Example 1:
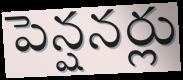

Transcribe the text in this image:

పెన్షనర్లు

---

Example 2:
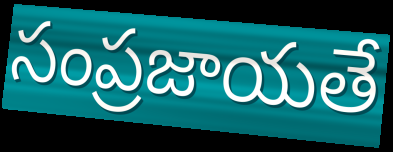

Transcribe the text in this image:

సంప్రజాయతే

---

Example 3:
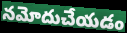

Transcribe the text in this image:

నమోదుచేయడం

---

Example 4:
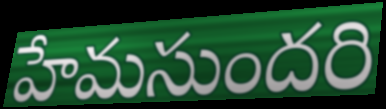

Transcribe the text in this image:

హేమసుందరి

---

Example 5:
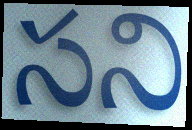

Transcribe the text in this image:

సని